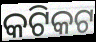
କଟିକଟ